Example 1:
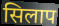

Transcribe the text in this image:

सिलाप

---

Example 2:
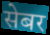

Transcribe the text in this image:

सेबर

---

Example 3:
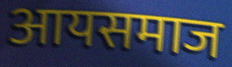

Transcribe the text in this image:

आयसमाज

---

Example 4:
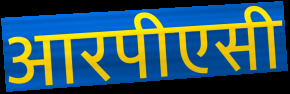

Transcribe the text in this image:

आरपीएसी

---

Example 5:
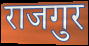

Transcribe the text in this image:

राजगुर